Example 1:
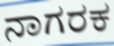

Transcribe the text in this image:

ನಾಗರಕ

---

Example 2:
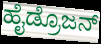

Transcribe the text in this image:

ಹೈಡ್ರೊಜನ್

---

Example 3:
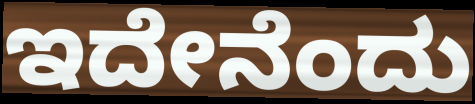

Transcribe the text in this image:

ಇದೇನೆಂದು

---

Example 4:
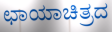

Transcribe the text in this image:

ಛಾಯಾಚಿತ್ರದ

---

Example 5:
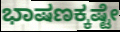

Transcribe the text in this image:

ಭಾಷಣಕ್ಕಷ್ಟೇ